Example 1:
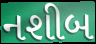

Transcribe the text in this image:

નશીબ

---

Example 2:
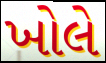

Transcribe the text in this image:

ખોલે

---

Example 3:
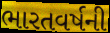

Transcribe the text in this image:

ભારતવર્ષની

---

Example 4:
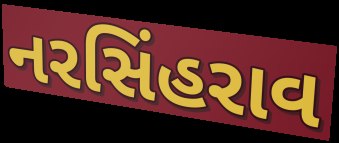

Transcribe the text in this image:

નરસિંહરાવ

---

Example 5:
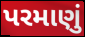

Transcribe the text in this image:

પરમાણું